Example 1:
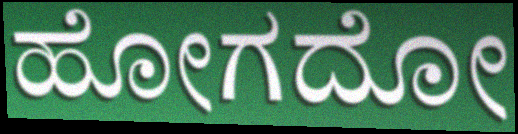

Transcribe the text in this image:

ಹೋಗದೋ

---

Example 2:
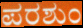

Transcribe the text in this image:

ಪರಶುಂ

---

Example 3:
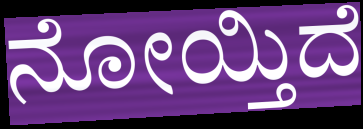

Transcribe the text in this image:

ನೋಯ್ತಿದೆ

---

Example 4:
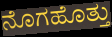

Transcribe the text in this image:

ನೊಗಹೊತ್ತು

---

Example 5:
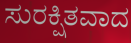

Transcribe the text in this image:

ಸುರಕ್ಷಿತವಾದ